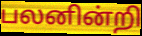
பலனின்றி